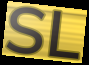
SL